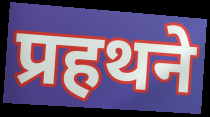
प्रहथने